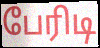
பேரிடி